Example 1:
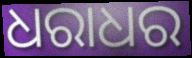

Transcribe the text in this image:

ଧରାଧର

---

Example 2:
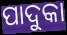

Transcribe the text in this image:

ପାଦୁକା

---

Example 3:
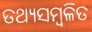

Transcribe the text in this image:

ତଥ୍ୟସମ୍ବଳିତ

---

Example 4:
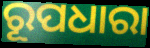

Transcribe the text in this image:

ରୂପଧାରା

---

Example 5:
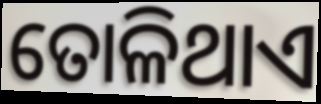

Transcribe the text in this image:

ତୋଳିଥାଏ